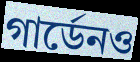
গার্ডেনও